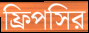
ফ্রিপসির